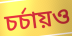
চর্চায়ও